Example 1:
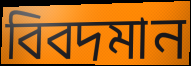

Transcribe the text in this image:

বিবদমান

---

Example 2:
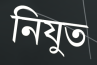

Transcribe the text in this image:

নিযুত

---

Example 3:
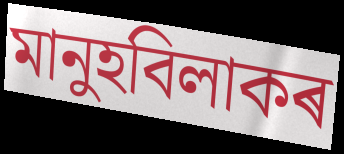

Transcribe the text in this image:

মানুহবিলাকৰ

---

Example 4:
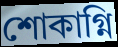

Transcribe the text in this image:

শোকাগ্নি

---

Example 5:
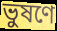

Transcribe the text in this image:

ভুষণে